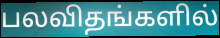
பலவிதங்களில்